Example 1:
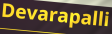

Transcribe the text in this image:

Devarapalli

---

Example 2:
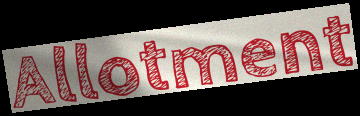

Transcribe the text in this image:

Allotment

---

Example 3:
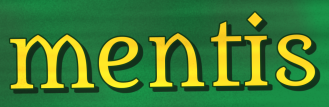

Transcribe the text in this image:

mentis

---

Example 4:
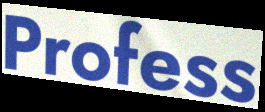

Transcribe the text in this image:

Profess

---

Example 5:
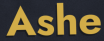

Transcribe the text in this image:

Ashe